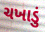
ચખાડું